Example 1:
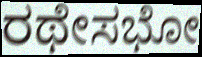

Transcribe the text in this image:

ರಥೇಸಭೋ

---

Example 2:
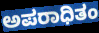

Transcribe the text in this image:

ಅಪರಾಧಿತಂ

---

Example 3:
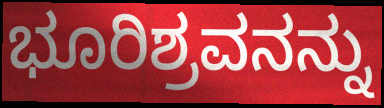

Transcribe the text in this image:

ಭೂರಿಶ್ರವನನ್ನು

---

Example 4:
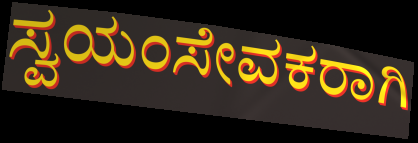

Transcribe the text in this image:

ಸ್ವಯಂಸೇವಕರಾಗಿ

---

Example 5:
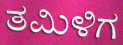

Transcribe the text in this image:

ತಮಿಳಿಗ